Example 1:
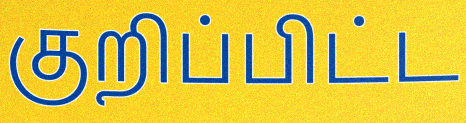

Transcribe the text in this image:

குறிப்பிட்ட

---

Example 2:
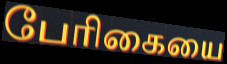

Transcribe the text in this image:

பேரிகையை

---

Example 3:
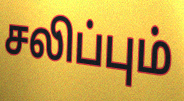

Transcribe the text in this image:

சலிப்பும்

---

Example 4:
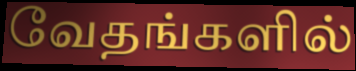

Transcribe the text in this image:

வேதங்களில்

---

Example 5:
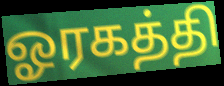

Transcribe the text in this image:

ஓரகத்தி